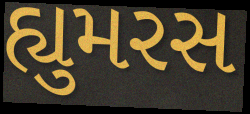
હ્યુમરસ